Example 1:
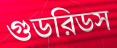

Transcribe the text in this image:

গুডরিডস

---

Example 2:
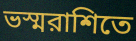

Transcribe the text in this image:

ভস্মরাশিতে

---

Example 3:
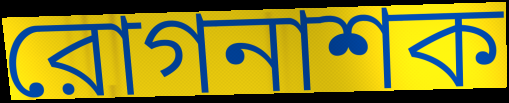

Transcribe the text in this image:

রোগনাশক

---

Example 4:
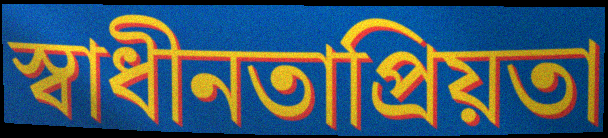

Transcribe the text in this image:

স্বাধীনতাপ্রিয়তা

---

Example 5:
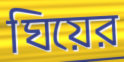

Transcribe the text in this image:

ঘিয়ের